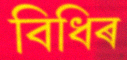
বিধিৰ